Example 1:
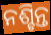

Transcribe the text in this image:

ନଶ୍ଚିନ୍ତ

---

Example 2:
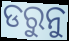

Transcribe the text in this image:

ଡରୁନୁ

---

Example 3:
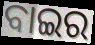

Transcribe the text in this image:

ବାଇର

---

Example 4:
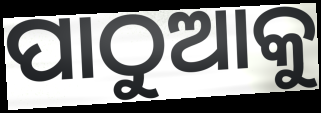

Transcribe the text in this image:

ପାଠୁଆକୁ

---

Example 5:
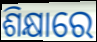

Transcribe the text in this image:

ଶିକ୍ଷାରେ